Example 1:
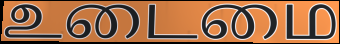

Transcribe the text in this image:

உடைமை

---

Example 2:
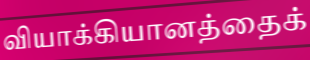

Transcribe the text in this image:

வியாக்கியானத்தைக்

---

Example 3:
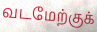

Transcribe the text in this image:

வடமேற்குக்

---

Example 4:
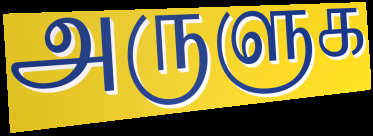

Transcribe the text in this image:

அருளுக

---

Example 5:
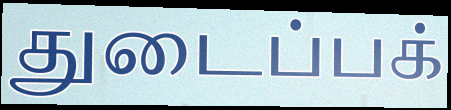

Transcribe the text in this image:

துடைப்பக்